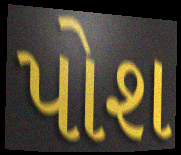
પોશ